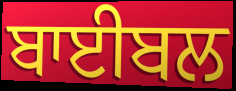
ਬਾਈਬਲ